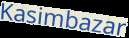
Kasimbazar